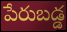
పేరుబడ్డ